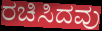
ರಚಿಸಿದವು